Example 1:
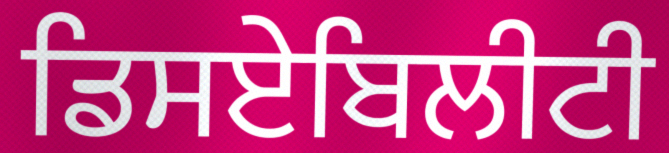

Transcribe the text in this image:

ਡਿਸਏਬਿਲੀਟੀ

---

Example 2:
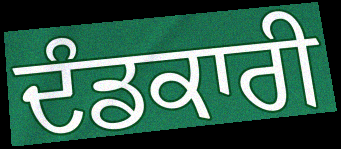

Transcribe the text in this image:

ਦੰਡਕਾਰੀ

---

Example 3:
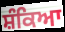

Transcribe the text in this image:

ਸ਼ੰਕਿਆ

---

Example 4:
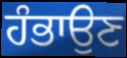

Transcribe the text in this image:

ਹੰਭਾਉਣ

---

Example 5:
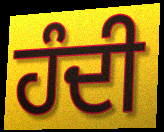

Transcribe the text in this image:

ਹੰਦੀ